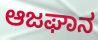
ಆಜಘಾನ